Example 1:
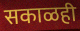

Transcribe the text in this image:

सकाळही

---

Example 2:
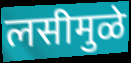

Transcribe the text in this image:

लसीमुळे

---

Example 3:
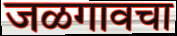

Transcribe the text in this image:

जळगावचा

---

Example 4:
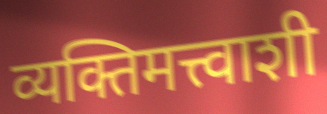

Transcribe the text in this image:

व्यक्तिमत्त्वाशी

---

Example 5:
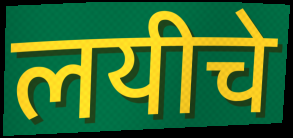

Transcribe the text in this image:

लयीचे